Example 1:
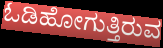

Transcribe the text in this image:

ಓಡಿಹೋಗುತ್ತಿರುವ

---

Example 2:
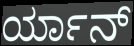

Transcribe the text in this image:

ರ್ಯಾನ್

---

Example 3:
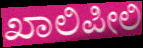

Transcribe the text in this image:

ಖಾಲಿಪೀಲಿ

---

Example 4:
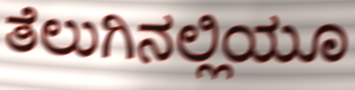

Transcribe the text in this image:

ತೆಲುಗಿನಲ್ಲಿಯೂ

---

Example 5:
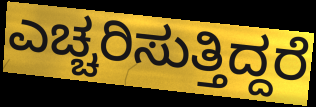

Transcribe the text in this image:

ಎಚ್ಚರಿಸುತ್ತಿದ್ದರೆ